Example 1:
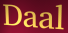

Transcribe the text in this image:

Daal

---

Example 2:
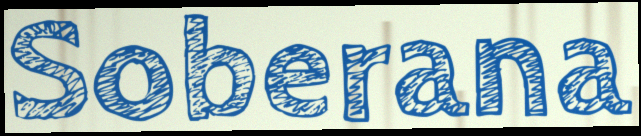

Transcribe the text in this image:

Soberana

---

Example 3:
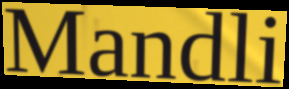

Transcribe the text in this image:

Mandli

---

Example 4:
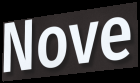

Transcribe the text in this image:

Nove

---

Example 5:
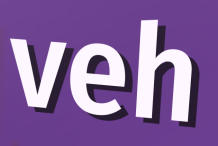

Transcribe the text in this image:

veh